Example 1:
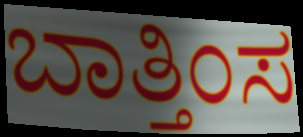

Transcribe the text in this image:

ಬಾತ್ತಿಂಸ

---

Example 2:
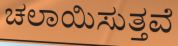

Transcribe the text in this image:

ಚಲಾಯಿಸುತ್ತವೆ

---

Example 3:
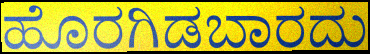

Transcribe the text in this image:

ಹೊರಗಿಡಬಾರದು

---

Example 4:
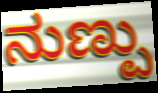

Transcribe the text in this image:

ನುಣ್ಪು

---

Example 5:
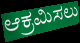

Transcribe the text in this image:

ಆಕ್ರಮಿಸಲು